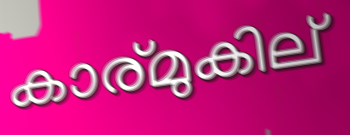
കാര്മുകില്